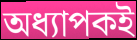
অধ্যাপকই